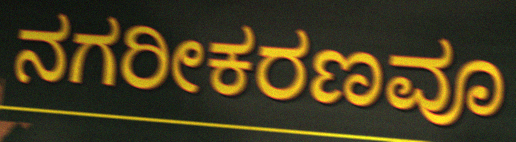
ನಗರೀಕರಣವೂ